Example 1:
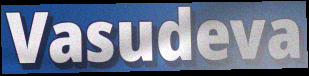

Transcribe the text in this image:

Vasudeva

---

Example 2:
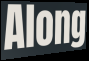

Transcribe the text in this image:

Along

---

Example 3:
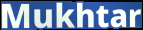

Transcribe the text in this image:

Mukhtar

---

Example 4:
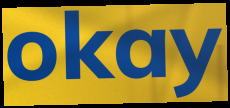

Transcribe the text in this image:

okay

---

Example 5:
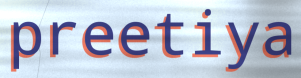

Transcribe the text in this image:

preetiya